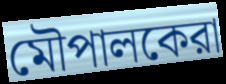
মৌপালকেরা